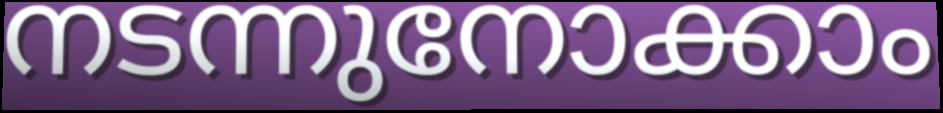
നടന്നുനോക്കാം